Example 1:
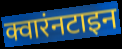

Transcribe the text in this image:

क्वारंनटाइन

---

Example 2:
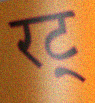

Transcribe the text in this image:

रट्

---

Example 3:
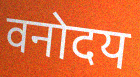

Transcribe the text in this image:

वनोदय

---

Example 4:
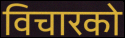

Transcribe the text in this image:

विचारको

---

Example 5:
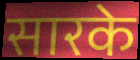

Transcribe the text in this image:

सारके